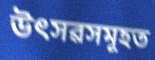
উৎসৱসমূহত